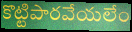
కొట్టిపారవేయలేం